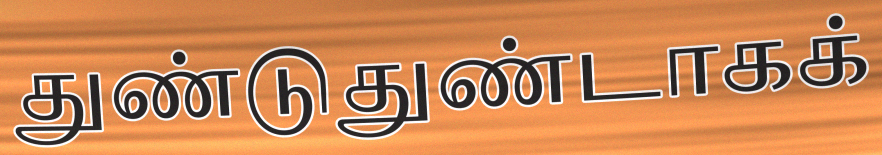
துண்டுதுண்டாகக்